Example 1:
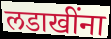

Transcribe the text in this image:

लडाखींना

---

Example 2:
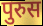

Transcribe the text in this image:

पुरुस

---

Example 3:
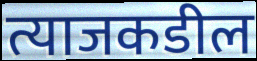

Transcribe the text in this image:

त्याजकडील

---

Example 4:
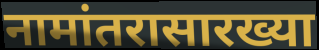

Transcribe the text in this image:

नामांतरासारख्या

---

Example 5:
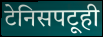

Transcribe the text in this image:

टेनिसपटूही